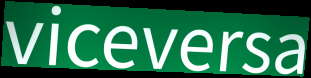
viceversa